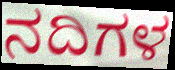
ನದಿಗಳ